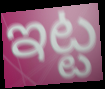
ఇట్ట